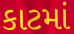
કાટમાં